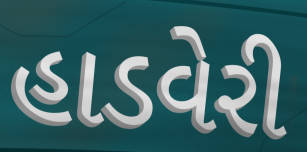
હાડવેરી